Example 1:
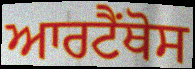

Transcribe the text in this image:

ਆਰਟੈਂਥੋਸ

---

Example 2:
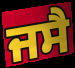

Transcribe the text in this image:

ਜਸੈ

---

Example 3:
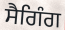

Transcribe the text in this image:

ਸੈਗਿੰਗ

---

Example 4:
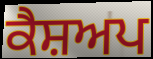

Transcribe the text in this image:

ਕੈਸ਼ਅਪ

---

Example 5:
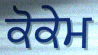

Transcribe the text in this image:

ਕੋਕੇਮ